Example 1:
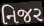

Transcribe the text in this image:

નિજર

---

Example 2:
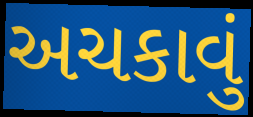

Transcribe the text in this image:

અચકાવું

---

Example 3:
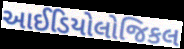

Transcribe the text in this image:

આઈડિયોલોજિકલ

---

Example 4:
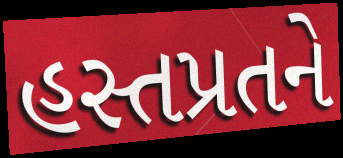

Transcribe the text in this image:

હસ્તપ્રતને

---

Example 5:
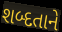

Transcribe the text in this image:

શબ્દતાને